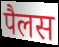
पैलस